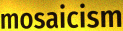
mosaicism